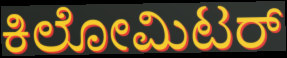
ಕಿಲೋಮಿಟರ್